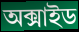
অক্সাইড